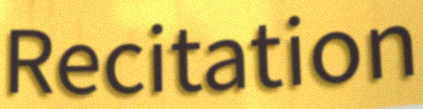
Recitation